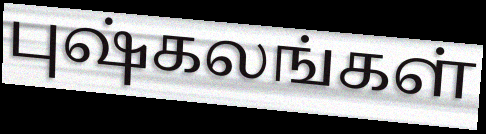
புஷ்கலங்கள்